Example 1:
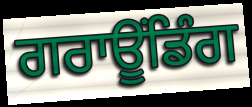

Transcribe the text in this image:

ਗਰਾਊਂਡਿੰਗ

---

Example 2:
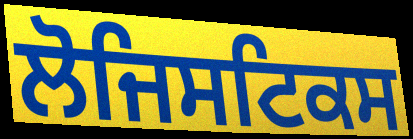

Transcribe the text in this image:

ਲੋਜਿਸਟਿਕਸ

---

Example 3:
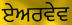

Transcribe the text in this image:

ਏਅਰਵੇਵ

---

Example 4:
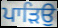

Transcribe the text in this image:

ਪਾੜਿਉ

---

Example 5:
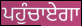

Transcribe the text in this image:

ਪਹੁੰਚਾਏਗਾ